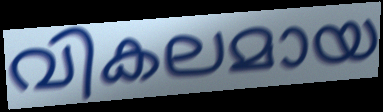
വികലമായ